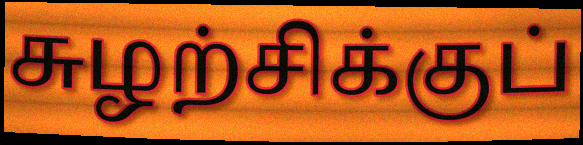
சுழற்சிக்குப்